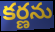
కర్ణను